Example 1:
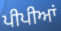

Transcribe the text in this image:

ਪੀਪੀਆਂ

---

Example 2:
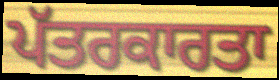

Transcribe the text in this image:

ਪੱਤਰਕਾਰਤਾ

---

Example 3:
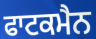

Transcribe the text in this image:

ਫਾਟਕਮੈਨ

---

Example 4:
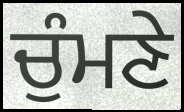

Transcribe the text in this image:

ਚੁੰਮਣੇ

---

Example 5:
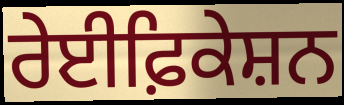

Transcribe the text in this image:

ਰੇਈਫ਼ਿਕੇਸ਼ਨ